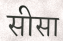
सीसा